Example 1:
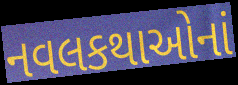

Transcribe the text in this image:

નવલકથાઓનાં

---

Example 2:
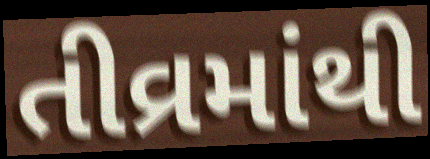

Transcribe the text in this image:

તીવ્રમાંથી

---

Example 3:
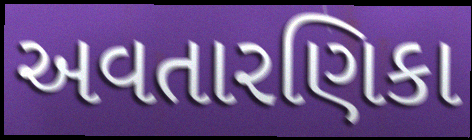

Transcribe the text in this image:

અવતારણિકા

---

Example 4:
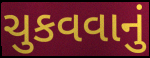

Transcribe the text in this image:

ચુકવવાનું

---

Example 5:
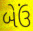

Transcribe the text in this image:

બેઉં